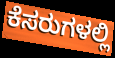
ಕೆಸರುಗಳಲ್ಲಿ